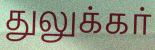
துலுக்கர்